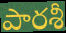
పారశీ